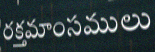
రక్తమాంసములు